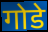
गोडे